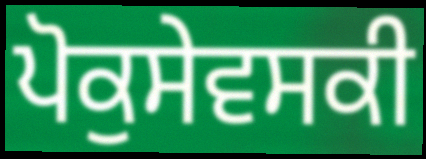
ਪੋਕੁਸੇਵਸਕੀ